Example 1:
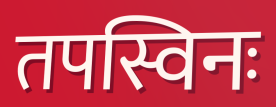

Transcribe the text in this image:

तपस्विनः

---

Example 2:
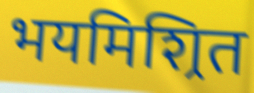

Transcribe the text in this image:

भयमिश्रित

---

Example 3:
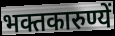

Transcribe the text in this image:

भक्तकारुण्यें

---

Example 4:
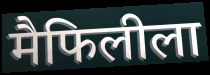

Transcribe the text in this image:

मैफिलीला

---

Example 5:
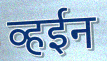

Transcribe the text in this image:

व्हईन